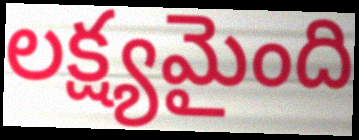
లక్ష్యమైంది